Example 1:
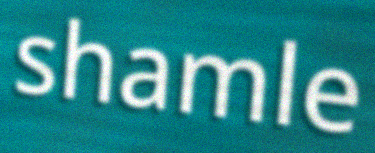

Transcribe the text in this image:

shamle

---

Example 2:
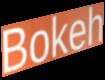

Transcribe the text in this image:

Bokeh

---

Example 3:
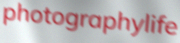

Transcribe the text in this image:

photographylife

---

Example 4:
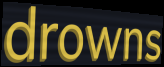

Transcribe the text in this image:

drowns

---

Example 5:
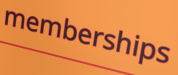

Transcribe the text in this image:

memberships